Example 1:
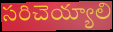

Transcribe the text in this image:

సరిచెయ్యాలి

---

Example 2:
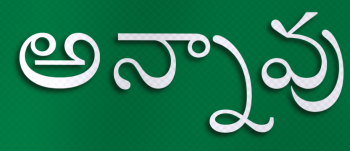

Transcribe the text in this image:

అన్నావు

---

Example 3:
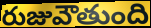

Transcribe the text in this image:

రుజువౌతుంది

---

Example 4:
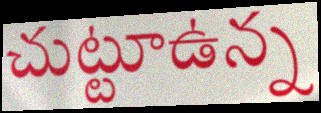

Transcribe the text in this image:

చుట్టూఉన్న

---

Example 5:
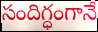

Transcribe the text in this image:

సందిగ్ధంగానే